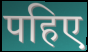
पहिए